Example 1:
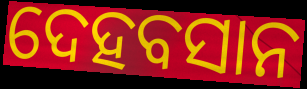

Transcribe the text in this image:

ଦେହବସାନ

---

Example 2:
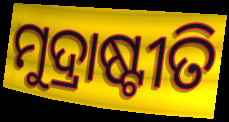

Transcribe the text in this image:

ମୁଦ୍ରାଷ୍ଟୀତି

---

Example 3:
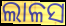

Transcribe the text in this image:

ଲାଳସ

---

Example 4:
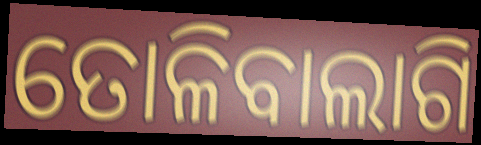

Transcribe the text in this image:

ତୋଳିବାଲାଗି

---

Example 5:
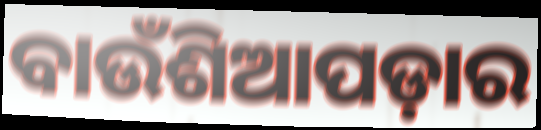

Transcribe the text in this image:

ବାଉଁଶିଆପଡ଼ାର